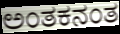
ಅಂತಕನಂತ